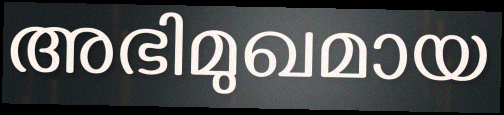
അഭിമുഖമായ